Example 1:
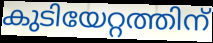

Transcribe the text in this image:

കുടിയേറ്റത്തിന്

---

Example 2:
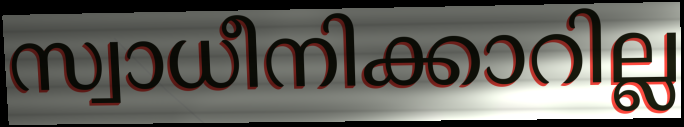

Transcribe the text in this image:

സ്വാധീനിക്കാറില്ല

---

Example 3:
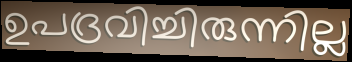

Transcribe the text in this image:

ഉപദ്രവിച്ചിരുന്നില്ല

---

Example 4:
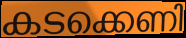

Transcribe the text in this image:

കടക്കെണി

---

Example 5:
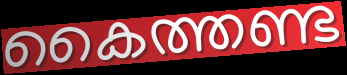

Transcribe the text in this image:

കൈത്തണ്ട